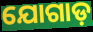
ଯୋଗାଡ଼